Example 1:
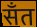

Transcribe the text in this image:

सँत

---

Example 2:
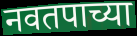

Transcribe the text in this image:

नवतपाच्या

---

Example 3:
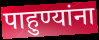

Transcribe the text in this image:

पाहुण्यांना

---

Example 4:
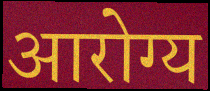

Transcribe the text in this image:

आरोग्य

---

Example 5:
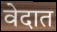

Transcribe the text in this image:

वेदात